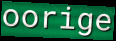
oorige